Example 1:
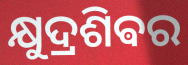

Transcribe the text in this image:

କ୍ଷୁଦ୍ରଶିଵର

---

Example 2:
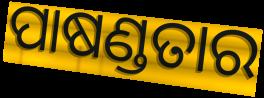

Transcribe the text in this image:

ପାଷଣ୍ଡତାର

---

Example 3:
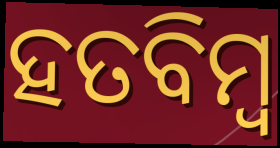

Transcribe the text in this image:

ହତବିମ୍ବ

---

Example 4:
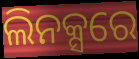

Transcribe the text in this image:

ଲିନକ୍ସରେ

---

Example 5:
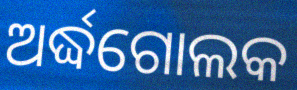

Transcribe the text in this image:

ଅର୍ଦ୍ଧଗୋଲକ